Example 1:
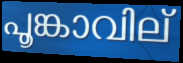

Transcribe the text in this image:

പൂങ്കാവില്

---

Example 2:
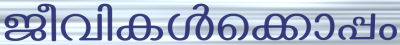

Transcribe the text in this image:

ജീവികൾക്കൊപ്പം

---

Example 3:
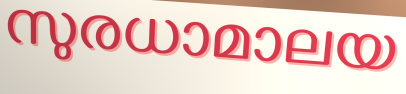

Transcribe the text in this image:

സുരധാമാലയ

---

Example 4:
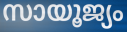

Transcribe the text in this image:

സായൂജ്യം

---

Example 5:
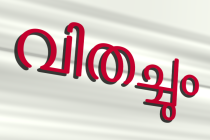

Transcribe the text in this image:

വിതച്ചും